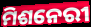
ମିଶନେରୀ